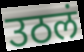
उठलं